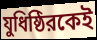
যুধিষ্ঠিরকেই